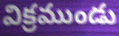
విక్రముండు